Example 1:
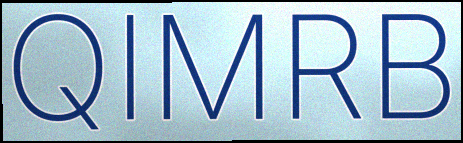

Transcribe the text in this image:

QIMRB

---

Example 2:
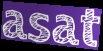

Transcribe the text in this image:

asat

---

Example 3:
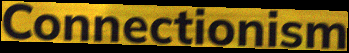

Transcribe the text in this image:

Connectionism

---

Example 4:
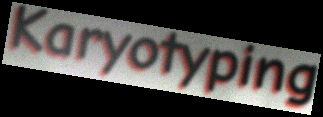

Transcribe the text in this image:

Karyotyping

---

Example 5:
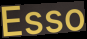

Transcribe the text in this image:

Esso